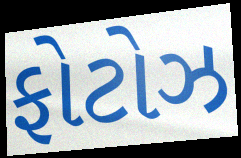
ફોટોઝ